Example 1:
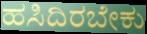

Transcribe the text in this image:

ಹಸಿದಿರಬೇಕು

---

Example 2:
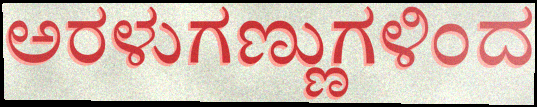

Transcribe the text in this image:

ಅರಳುಗಣ್ಣುಗಳಿಂದ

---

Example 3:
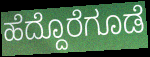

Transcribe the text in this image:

ಹೆದ್ದೊರೆಗೂಡೆ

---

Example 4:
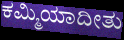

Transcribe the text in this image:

ಕಮ್ಮಿಯಾದೀತು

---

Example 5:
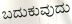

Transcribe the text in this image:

ಬದುಕುವುದು